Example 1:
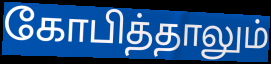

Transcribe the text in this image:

கோபித்தாலும்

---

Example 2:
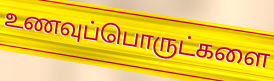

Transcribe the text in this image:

உணவுப்பொருட்களை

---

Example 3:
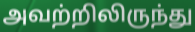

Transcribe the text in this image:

அவற்றிலிருந்து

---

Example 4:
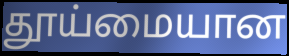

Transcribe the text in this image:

தூய்மையான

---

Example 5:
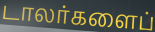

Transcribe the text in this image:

டாலர்களைப்